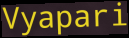
Vyapari